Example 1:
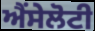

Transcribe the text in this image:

ਐਂਸੇਲੋਟੀ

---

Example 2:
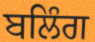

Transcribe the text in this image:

ਬਲਿੰਗ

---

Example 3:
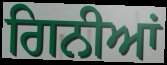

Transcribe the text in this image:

ਗਿਨੀਆਂ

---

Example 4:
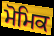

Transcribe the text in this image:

ਮੋਮਿਕ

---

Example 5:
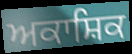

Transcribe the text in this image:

ਅਕਾਸ਼ਿਕ